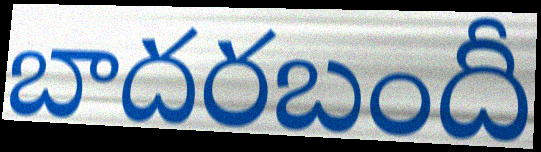
బాదరబందీ